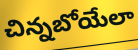
చిన్నబోయేలా